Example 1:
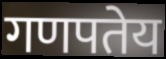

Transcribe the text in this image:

गणपतेय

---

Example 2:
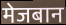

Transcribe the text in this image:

मेजबान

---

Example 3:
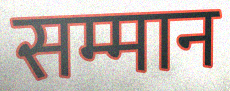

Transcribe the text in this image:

सम्मान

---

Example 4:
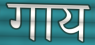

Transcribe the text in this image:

गाय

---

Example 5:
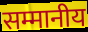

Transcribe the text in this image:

सम्मानीय